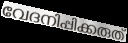
വേദനിപ്പിക്കരുത്